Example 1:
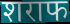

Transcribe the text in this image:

शराफ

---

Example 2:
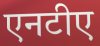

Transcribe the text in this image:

एनटीए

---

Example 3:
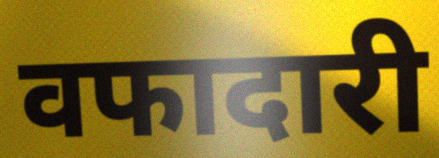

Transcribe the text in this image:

वफादारी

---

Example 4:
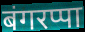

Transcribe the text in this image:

बंगरप्पा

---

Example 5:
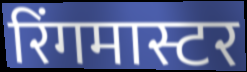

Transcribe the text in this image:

रिंगमास्टर